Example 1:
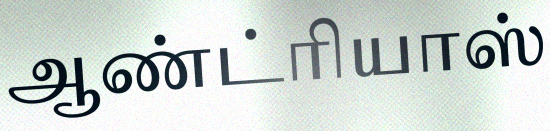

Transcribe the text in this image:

ஆண்ட்ரியாஸ்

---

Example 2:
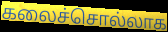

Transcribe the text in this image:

கலைச்சொல்லாக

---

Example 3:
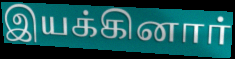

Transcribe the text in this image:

இயக்கினார்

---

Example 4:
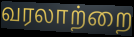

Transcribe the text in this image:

வரலாற்றை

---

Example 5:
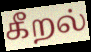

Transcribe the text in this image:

கீறல்